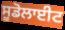
ਸੂਡੋਲਾਈਟ